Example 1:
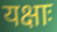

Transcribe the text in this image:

यक्षाः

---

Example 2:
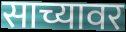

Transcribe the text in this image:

साच्यावर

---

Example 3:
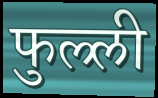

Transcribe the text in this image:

फुल्ली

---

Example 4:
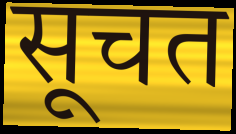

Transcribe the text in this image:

सूचत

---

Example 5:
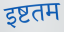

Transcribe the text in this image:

इष्टतम